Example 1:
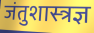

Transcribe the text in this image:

जंतुशास्त्रज्ञ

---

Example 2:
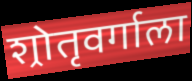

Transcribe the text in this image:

श्रोतृवर्गाला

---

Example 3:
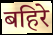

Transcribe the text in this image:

बहिरे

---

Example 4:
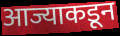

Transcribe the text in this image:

आज्याकडून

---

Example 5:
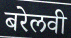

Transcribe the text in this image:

बरेलवी